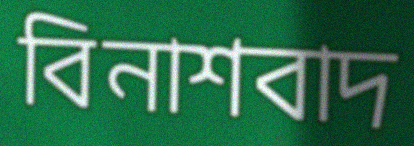
বিনাশবাদ